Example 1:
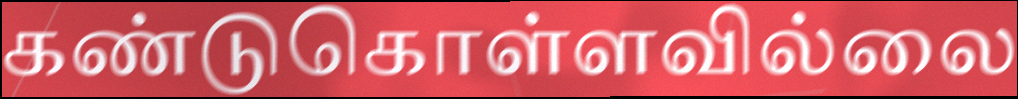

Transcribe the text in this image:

கண்டுகொள்ளவில்லை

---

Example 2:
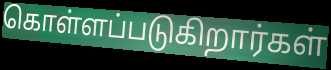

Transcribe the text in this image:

கொள்ளப்படுகிறார்கள்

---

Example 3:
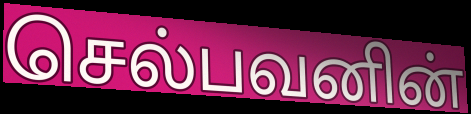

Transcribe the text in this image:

செல்பவனின்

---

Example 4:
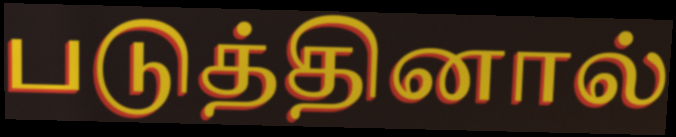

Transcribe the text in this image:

படுத்தினால்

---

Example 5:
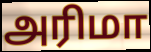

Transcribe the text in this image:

அரிமா